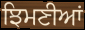
ਝਿਮਣੀਆਂ